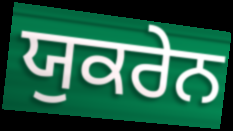
ਯੁਕਰੇਨ